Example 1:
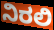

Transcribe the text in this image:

ನಿರಲಿ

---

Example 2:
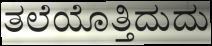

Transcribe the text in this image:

ತಲೆಯೊತ್ತಿದುದು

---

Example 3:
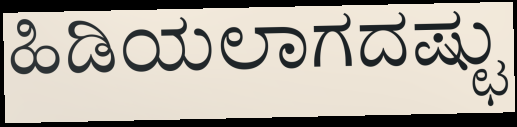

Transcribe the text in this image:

ಹಿಡಿಯಲಾಗದಷ್ಟು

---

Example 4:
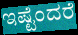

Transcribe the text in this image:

ಇಷ್ಟೆಂದರೆ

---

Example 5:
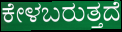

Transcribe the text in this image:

ಕೇಳಬರುತ್ತದೆ